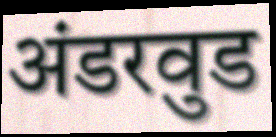
अंडरवुड